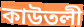
কাউতলী